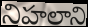
నిహలాని